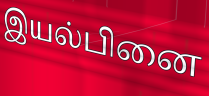
இயல்பினை